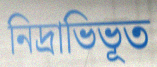
নিদ্রাভিভূত